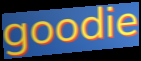
goodie